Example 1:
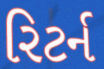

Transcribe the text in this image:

રિટર્ન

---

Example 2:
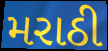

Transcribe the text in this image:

મરાઠી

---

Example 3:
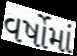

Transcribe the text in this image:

વર્ષોમાં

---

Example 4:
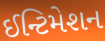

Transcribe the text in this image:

ઈન્ટિમેશન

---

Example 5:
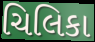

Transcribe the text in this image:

ચિલિકા